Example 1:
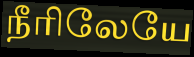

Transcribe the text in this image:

நீரிலேயே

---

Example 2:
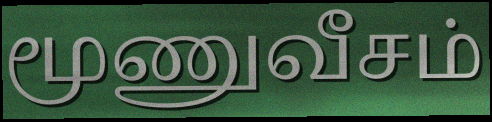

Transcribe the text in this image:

மூணுவீசம்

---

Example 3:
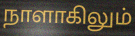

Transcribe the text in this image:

நாளாகிலும்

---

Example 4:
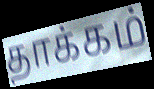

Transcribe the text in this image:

தாக்கம்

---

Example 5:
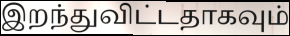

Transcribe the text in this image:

இறந்துவிட்டதாகவும்